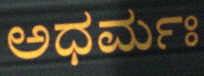
ಅಧರ್ಮಃ